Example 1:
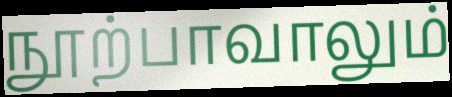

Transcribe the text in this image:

நூற்பாவாலும்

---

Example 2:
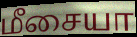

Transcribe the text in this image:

மீசையா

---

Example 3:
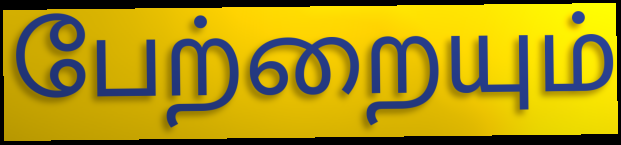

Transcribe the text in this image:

பேற்றையும்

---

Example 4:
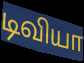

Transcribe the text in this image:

டிவியா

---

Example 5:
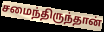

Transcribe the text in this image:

சமைந்திருந்தான்